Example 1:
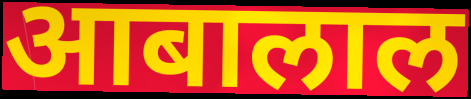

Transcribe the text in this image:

आबालाल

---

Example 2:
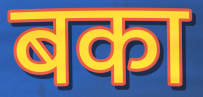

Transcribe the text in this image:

बका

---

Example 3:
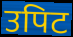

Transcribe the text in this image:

उपिट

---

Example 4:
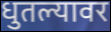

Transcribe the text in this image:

धुतल्यावर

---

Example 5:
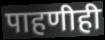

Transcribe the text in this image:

पाहणीही